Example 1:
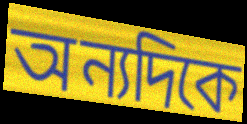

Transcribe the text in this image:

অন্যদিকে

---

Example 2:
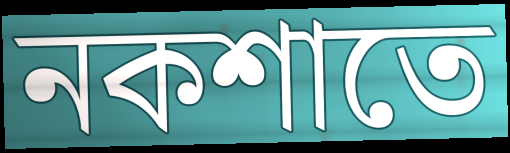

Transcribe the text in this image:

নকশাতে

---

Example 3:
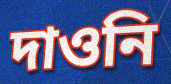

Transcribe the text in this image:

দাওনি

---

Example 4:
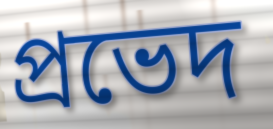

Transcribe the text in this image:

প্রভেদ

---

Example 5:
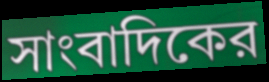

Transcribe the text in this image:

সাংবাদিকের